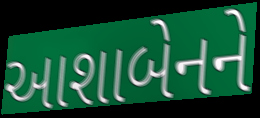
આશાબેનને